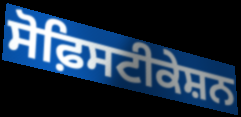
ਸੋਫ਼ਿਸਟੀਕੇਸ਼ਨ